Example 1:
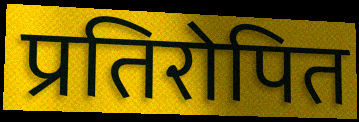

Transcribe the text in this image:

प्रतिरोपित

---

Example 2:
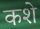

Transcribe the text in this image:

कशे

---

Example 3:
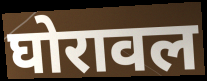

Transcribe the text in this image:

घोरावल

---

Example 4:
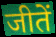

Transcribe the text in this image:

जीतें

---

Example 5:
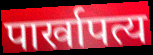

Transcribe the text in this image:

पार्खापत्य